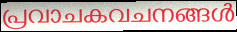
പ്രവാചകവചനങ്ങൾ